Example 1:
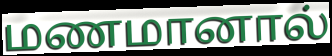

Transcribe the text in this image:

மணமானால்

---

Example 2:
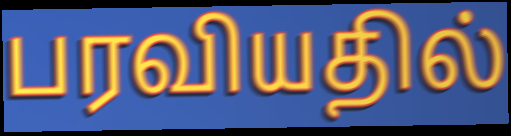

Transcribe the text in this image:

பரவியதில்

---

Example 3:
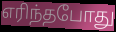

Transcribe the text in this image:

எரிந்தபோது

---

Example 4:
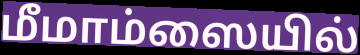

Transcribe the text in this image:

மீமாம்ஸையில்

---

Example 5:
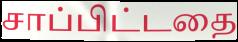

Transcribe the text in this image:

சாப்பிட்டதை